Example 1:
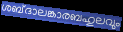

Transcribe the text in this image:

ശബ്ദാലങ്കാരബഹുലവും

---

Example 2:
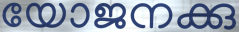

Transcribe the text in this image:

യോജനക്കു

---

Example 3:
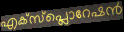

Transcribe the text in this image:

എക്സ്പ്ലൊറേഷൻ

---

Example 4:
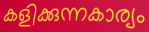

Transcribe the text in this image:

കളിക്കുന്നകാര്യം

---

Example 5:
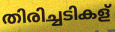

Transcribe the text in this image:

തിരിച്ചടികള്